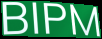
BIPM